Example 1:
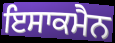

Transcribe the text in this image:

ਇਸਾਕਮੈਨ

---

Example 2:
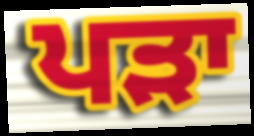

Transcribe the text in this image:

ਪੜਾ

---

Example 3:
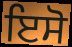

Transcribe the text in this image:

ਇਸੋ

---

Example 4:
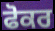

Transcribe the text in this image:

ਫੋਕਰ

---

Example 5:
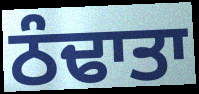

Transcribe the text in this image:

ਠੰਢਾਤਾ